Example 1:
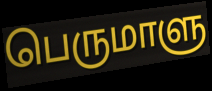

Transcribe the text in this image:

பெருமாளு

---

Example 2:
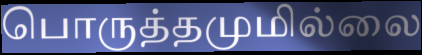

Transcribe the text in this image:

பொருத்தமுமில்லை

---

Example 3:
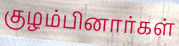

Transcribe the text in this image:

குழம்பினார்கள்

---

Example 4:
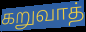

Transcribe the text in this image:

கறுவாத்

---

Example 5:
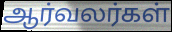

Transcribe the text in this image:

ஆர்வலர்கள்